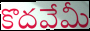
కొదవేమీ